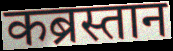
कब्रस्तान